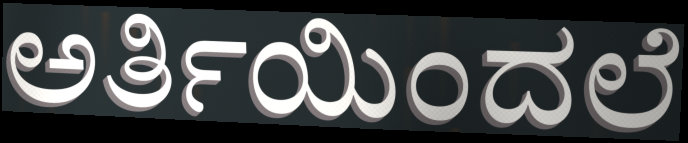
ಅರ್ತಿಯಿಂದಲೆ